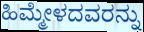
ಹಿಮ್ಮೇಳದವರನ್ನು